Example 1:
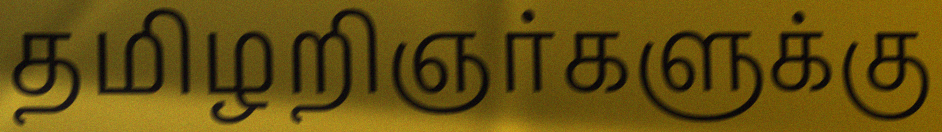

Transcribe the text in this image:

தமிழறிஞர்களுக்கு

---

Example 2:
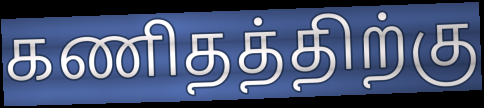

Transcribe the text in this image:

கணிதத்திற்கு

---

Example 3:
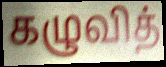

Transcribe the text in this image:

கழுவித்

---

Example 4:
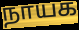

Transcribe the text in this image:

நாயக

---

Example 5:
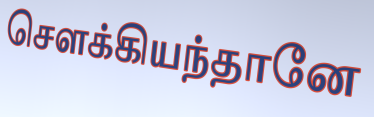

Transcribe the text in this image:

சௌக்கியந்தானே